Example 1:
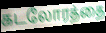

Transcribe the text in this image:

கடலோரத்தை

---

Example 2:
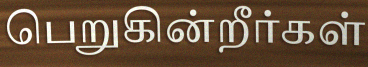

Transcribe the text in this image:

பெறுகின்றீர்கள்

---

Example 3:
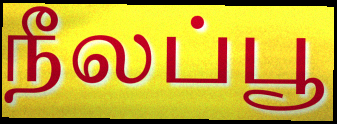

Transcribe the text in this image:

நீலப்பூ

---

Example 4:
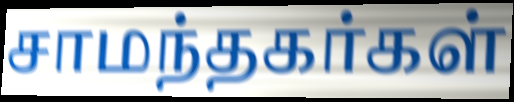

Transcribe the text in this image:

சாமந்தகர்கள்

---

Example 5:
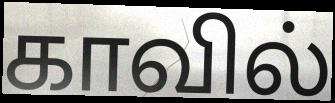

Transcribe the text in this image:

காவில்